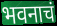
भवनाचं